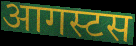
आगस्टस